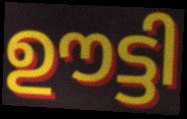
ഊട്ടി